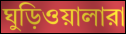
ঘুড়িওয়ালারা